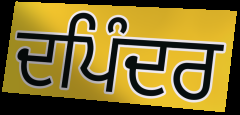
ਦਪਿੰਦਰ